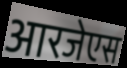
आरजेएस